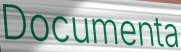
Documenta